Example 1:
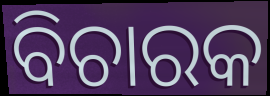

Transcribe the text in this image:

ବିଚାରକ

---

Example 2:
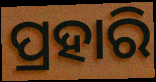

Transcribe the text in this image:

ପ୍ରହାରି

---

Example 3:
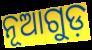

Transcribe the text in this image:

ନୂଆଗୁଡ଼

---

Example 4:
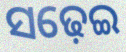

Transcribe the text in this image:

ସଢ଼େଇ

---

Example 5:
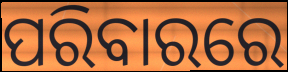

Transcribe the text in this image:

ପରିବାରରେ